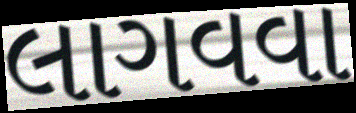
લાગવવા